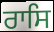
ਰਾਸਿ